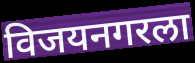
विजयनगरला